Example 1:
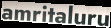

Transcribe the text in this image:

amritaluru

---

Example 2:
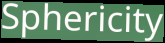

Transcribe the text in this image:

Sphericity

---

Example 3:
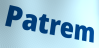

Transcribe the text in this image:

Patrem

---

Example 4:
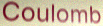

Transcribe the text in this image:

Coulomb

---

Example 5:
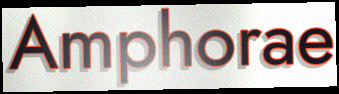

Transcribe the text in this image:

Amphorae